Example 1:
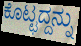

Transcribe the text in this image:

ಕೊಟ್ಟದ್ದನ್ನು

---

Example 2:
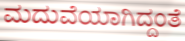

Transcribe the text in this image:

ಮದುವೆಯಾಗಿದ್ದಂತೆ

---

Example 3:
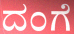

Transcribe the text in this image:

ದಂಗೆ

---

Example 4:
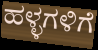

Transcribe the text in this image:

ಹಳ್ಳಗಳಿಗೆ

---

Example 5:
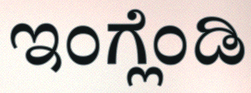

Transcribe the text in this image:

ಇಂಗ್ಲೆಂಡಿ